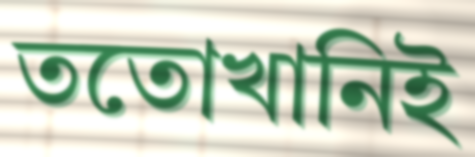
ততোখানিই